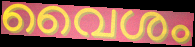
വൈശം